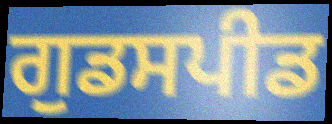
ਗੁਡਸਪੀਡ